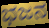
ಭಜನ